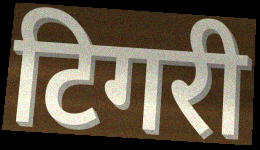
टिगरी